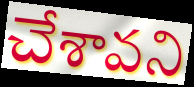
చేశావని